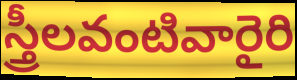
స్త్రీలవంటివారైరి